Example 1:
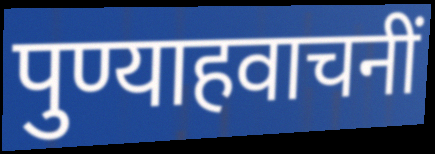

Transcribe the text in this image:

पुण्याहवाचनीं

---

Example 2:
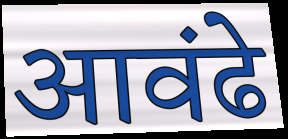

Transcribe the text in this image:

आवंढे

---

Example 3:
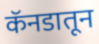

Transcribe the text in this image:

कॅनडातून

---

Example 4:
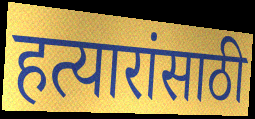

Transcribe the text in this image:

हत्यारांसाठी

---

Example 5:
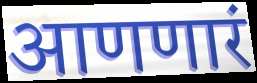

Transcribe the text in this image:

आणणारं